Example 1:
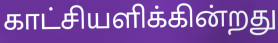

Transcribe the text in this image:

காட்சியளிக்கின்றது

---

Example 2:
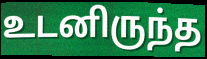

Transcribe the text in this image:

உடனிருந்த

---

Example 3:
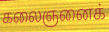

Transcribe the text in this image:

கலைஞனைக்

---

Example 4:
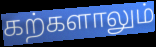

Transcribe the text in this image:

கற்களாலும்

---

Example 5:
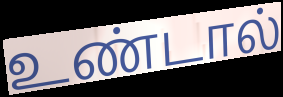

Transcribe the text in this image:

உண்டால்